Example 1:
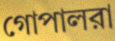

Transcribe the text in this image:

গোপালরা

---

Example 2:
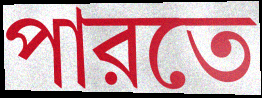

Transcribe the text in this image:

পারতে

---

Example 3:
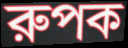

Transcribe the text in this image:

রুপক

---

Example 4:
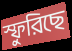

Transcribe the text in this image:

স্ফুরিছে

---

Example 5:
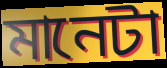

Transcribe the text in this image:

মানেটা